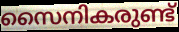
സൈനികരുണ്ട്